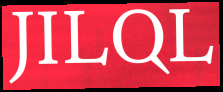
JILQL